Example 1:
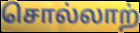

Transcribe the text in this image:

சொல்லாற்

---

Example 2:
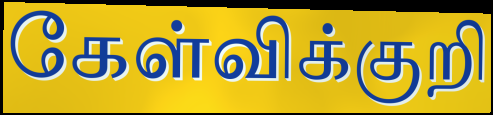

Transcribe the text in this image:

கேள்விக்குறி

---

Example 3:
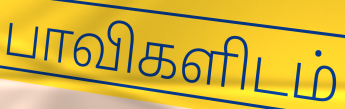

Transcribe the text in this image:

பாவிகளிடம்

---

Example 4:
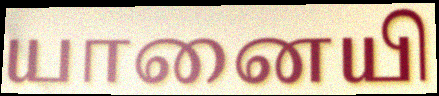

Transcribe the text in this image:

யானையி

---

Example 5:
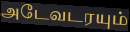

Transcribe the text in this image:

அடேவடரயும்